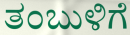
ತಂಬುಳಿಗೆ